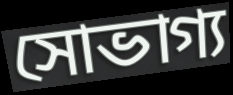
সোভাগ্য